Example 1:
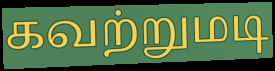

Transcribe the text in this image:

கவற்றுமடி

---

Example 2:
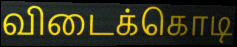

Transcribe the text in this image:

விடைக்கொடி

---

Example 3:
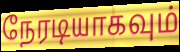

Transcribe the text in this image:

நேரடியாகவும்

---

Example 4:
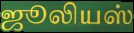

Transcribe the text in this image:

ஜூலியஸ்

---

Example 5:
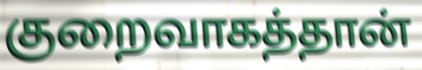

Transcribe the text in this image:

குறைவாகத்தான்